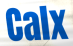
Calx